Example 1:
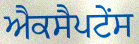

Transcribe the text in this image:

ਐਕਸੈਪਟੇਂਸ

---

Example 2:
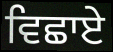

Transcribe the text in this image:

ਵਿਛਾਏ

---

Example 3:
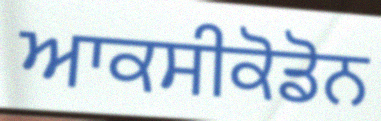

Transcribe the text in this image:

ਆਕਸੀਕੋਡੋਨ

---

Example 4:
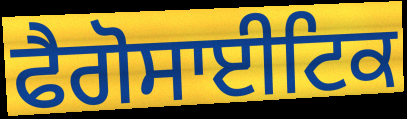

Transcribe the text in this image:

ਫੈਗੋਸਾਈਟਿਕ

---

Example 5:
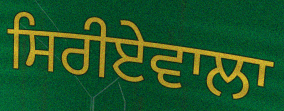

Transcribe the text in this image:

ਸਿਰੀਏਵਾਲਾ